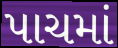
પાચમાં